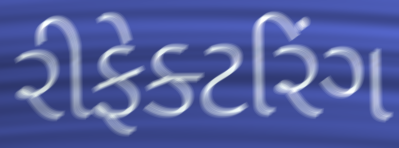
રીફેક્ટરિંગ